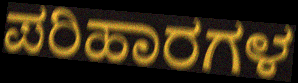
ಪರಿಹಾರಗಳ